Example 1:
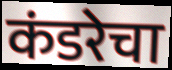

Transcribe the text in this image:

कंडरेचा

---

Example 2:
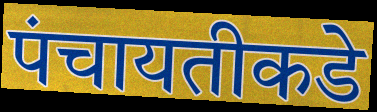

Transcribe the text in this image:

पंचायतीकडे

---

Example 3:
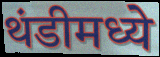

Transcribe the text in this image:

थंडीमध्ये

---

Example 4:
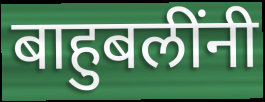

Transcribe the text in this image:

बाहुबलींनी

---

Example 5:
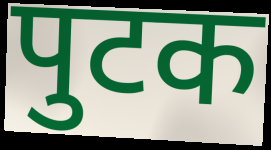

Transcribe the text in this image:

पुटक